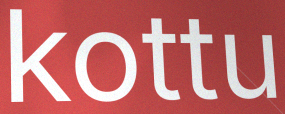
kottu